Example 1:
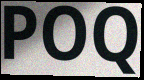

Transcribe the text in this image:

POQ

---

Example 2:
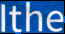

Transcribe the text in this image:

Ithe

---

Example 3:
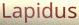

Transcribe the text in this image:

Lapidus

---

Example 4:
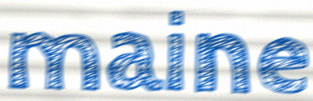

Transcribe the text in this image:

maine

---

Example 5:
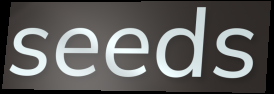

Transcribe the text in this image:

seeds